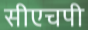
सीएचपी